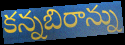
కన్నబిరాన్ను